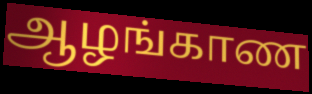
ஆழங்காண